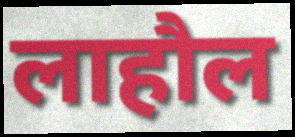
लाहौल